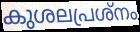
കുശലപ്രശ്നം